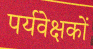
पर्यवेक्षकों